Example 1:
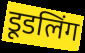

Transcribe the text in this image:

डूडलिंग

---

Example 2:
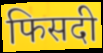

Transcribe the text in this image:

फिसदी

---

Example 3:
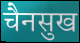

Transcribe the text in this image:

चैनसुख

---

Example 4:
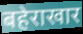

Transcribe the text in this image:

बहेराखार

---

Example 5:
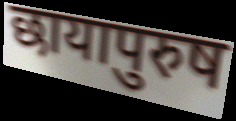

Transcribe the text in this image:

छायापुरुष